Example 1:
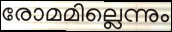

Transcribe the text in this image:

രോമമില്ലെന്നും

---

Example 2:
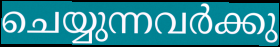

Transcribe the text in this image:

ചെയ്യുന്നവർക്കു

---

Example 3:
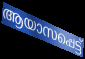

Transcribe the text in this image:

ആയാസപ്പെട്ട്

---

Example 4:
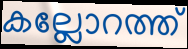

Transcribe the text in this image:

കല്ലോറത്ത്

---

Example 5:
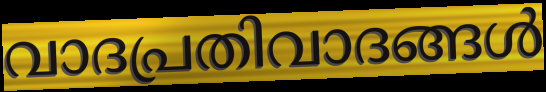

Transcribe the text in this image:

വാദപ്രതിവാദങ്ങൾ